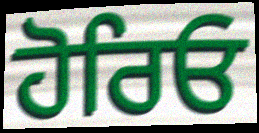
ਹੋਰਿਓ